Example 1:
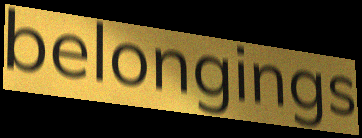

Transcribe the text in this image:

belongings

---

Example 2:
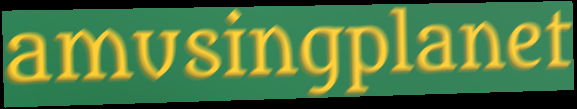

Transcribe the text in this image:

amusingplanet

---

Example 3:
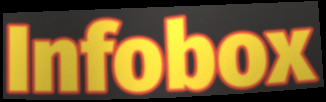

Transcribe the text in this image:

Infobox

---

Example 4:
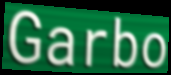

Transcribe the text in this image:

Garbo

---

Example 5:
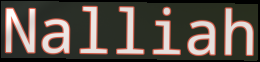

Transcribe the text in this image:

Nalliah